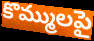
కొమ్ములపై